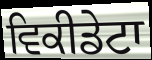
ਵਿਕੀਡੇਟਾ